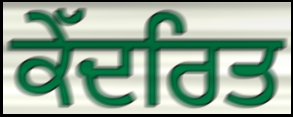
ਕੇੱਦਰਿਤ